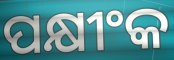
ପକ୍ଷୀଂକ